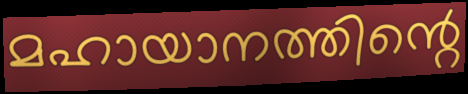
മഹായാനത്തിന്റെ